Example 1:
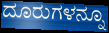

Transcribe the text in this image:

ದೂರುಗಳನ್ನೂ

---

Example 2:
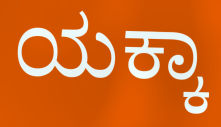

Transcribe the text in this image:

ಯಕ್ಕಾ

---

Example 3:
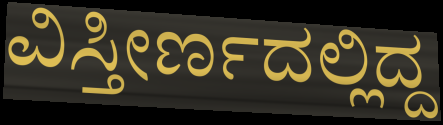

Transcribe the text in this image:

ವಿಸ್ತೀರ್ಣದಲ್ಲಿದ್ದ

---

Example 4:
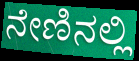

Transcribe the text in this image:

ನೇಣಿನಲ್ಲಿ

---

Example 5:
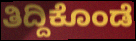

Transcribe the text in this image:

ತಿದ್ದಿಕೊಂಡೆ